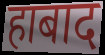
हाबाद